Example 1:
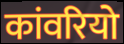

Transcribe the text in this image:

कांवरियो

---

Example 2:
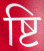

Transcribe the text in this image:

ष्टि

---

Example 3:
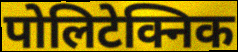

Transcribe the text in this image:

पोलिटेक्निक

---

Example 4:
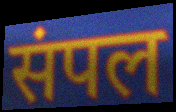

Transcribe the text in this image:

संपल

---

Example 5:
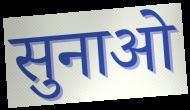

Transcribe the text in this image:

सुनाओ